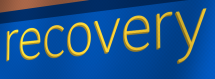
recovery